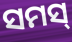
ସମସ୍